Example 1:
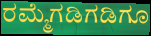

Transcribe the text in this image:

ರಮ್ಮೆಗಡಿಗಡಿಗೂ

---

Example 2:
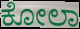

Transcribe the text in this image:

ಕೋಲಾ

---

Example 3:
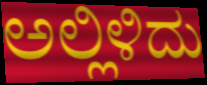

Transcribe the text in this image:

ಅಲ್ಲಿಳಿದು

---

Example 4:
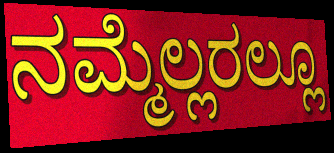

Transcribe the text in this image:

ನಮ್ಮೆಲ್ಲರಲ್ಲೂ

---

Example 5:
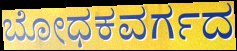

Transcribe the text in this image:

ಬೋಧಕವರ್ಗದ